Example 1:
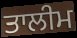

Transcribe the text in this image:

ਤਾਲੀਮ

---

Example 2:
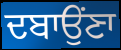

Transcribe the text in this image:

ਦਬਾਉਂਣਾ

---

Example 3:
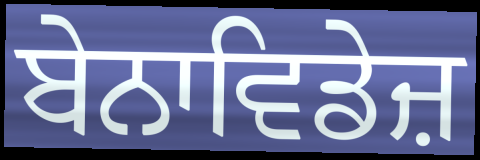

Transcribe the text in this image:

ਬੇਨਾਵਿਡੇਜ਼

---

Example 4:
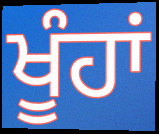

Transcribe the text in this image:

ਖੂੰਹਾਂ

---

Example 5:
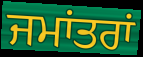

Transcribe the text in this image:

ਜਮਾਂਤਰਾਂ